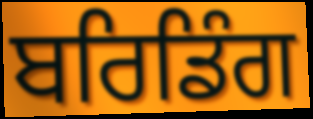
ਬਰਿਡਿੰਗ